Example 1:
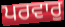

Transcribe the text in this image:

ਪਰਵਾਰੁ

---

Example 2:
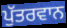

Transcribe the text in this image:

ਪੁੱਤਰਵਾਨ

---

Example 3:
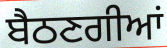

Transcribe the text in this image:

ਬੈਠਣਗੀਆਂ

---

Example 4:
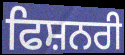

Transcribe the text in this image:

ਫਿਸ਼ਨਰੀ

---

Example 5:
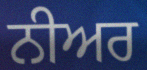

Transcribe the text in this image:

ਨੀਅਰ